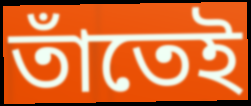
তাঁতেই